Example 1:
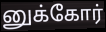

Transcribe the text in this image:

னுக்கோர்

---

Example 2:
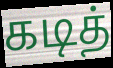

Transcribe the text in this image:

கடித்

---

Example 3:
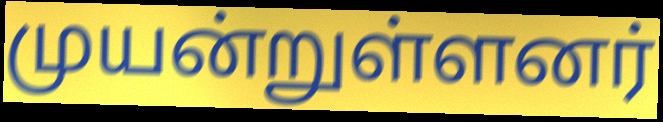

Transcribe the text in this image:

முயன்றுள்ளனர்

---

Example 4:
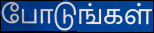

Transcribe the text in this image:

போடுங்கள்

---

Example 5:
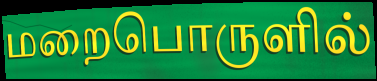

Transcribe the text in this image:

மறைபொருளில்